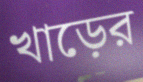
খাড়ের